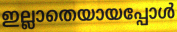
ഇല്ലാതെയായപ്പോൾ